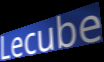
Lecube